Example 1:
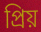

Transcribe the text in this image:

প্ৰিয়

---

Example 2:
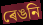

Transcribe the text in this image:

ৰেঙনি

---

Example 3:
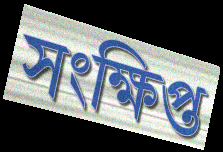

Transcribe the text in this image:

সংক্ষিপ্ত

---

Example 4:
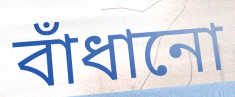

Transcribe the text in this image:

বাঁধানো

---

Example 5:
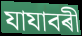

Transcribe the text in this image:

যাযাবৰী